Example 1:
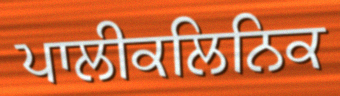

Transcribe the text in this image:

ਪਾਲੀਕਲਿਨਿਕ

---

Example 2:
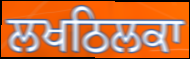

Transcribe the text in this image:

ਲਖਠਿਲਕਾ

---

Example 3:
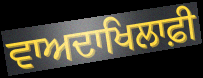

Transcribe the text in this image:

ਵਾਅਦਾਖਿਲਾਫ਼ੀ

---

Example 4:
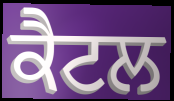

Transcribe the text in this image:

ਕੈਟਲ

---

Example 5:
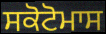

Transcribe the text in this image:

ਸਕੋਟੋਮਾਸ